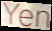
Yen